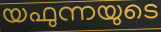
യഫുന്നയുടെ